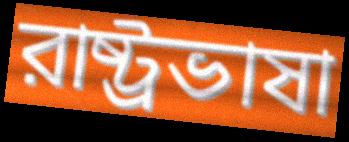
রাষ্ট্রভাষা